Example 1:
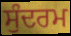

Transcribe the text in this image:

ਸੁੰਦਰਮ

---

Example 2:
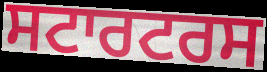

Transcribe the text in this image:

ਸਟਾਰਟਰਸ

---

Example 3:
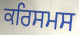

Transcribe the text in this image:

ਕਰਿਸਮਸ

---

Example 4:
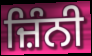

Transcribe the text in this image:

ਜ਼ਿੰਨੀ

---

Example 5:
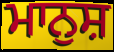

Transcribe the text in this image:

ਮਾਨੁਸ਼